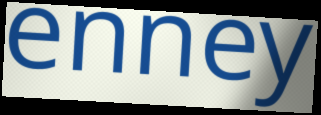
enney